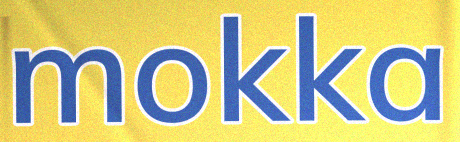
mokka